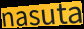
nasuta